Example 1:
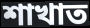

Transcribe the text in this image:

শাখাত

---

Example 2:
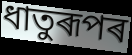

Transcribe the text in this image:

ধাতুৰূপৰ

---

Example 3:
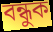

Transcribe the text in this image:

বন্ধুক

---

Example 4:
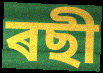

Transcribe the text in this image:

ৰছী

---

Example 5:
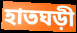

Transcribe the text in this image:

হাতঘড়ী